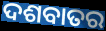
ଦଶବାତର